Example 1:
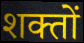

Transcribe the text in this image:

शक्तों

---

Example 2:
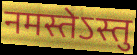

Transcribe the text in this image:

नमस्तेऽस्तु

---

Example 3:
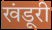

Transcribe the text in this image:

खंडूरी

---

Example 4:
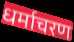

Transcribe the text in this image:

धर्माचरण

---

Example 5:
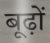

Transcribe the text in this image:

बूढ़ों